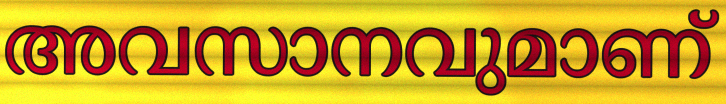
അവസാനവുമാണ്